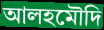
আলহমৌদি